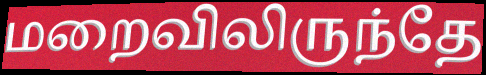
மறைவிலிருந்தே